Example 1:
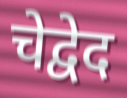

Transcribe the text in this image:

चेद्वेद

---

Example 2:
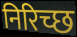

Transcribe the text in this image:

निरिच्छ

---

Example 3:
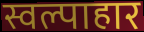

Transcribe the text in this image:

स्वल्पाहार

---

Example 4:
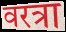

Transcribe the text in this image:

वरत्रा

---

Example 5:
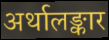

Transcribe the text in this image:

अर्थालङ्कार